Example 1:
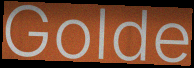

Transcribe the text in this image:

Golde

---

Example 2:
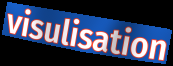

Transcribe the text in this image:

visulisation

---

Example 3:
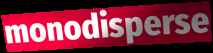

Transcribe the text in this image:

monodisperse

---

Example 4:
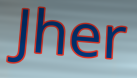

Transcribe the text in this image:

Jher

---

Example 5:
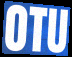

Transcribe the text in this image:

OTU